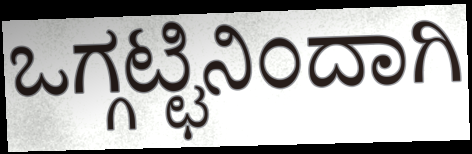
ಒಗ್ಗಟ್ಟಿನಿಂದಾಗಿ